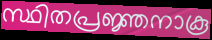
സ്ഥിതപ്രജ്ഞനാകൂ